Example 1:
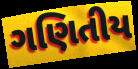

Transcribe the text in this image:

ગણિતીય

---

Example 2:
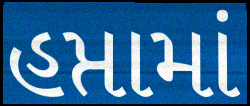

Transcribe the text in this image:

હપ્તામાં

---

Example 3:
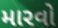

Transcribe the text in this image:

મારવો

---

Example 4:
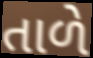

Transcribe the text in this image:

તાળે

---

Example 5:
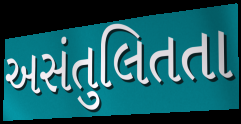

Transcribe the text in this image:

અસંતુલિતતા